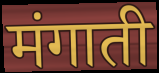
मंगाती